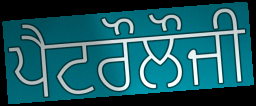
ਪੈਟਰੌਲੌਜੀ